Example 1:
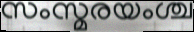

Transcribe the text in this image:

സംസ്മരയംശ്ച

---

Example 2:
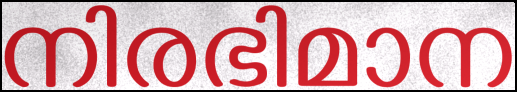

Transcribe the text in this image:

നിരഭിമാന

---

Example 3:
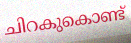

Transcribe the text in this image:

ചിറകുകൊണ്ട്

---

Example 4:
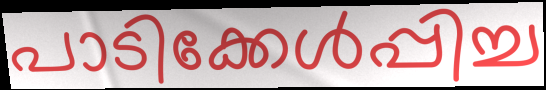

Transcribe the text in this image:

പാടിക്കേൾപ്പിച്ച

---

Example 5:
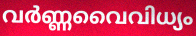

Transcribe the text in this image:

വർണ്ണവൈവിധ്യം